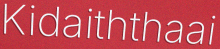
Kidaiththaai